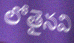
లోతైనవి